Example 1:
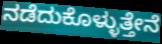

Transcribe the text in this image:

ನಡೆದುಕೊಳ್ಳುತ್ತೇನೆ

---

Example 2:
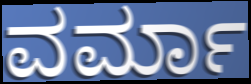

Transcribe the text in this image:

ವರ್ಮಾ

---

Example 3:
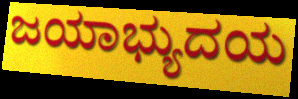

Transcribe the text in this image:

ಜಯಾಭ್ಯುದಯ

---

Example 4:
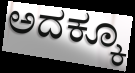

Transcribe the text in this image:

ಅದಕ್ಕೂ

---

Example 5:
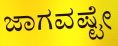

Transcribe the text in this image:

ಜಾಗವಷ್ಟೇ